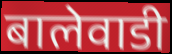
बालेवाडी